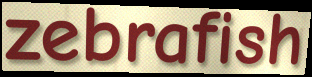
zebrafish